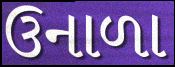
ઉનાળા